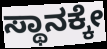
ಸ್ಥಾನಕ್ಕೇ